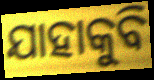
ଯାହାକୁବି